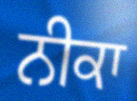
ਨੀਕਾ